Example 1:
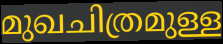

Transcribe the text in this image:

മുഖചിത്രമുള്ള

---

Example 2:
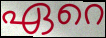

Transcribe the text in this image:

ഏറെ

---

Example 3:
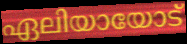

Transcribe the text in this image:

ഏലിയായോട്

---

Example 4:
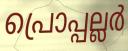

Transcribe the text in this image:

പ്രൊപ്പല്ലർ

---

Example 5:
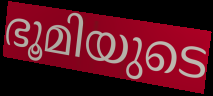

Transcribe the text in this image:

ഭൂമിയുടെ